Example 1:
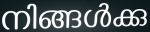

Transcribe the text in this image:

നിങ്ങൾക്കു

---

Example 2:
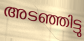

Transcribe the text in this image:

അടഞ്ഞിട്ടു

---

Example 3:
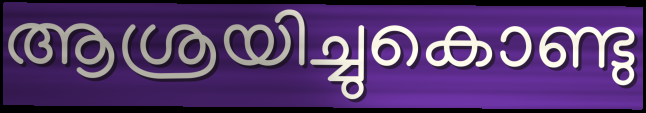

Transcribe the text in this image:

ആശ്രയിച്ചുകൊണ്ടു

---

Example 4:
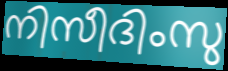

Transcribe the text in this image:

നിസീദിംസു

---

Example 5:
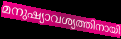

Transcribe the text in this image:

മനുഷ്യാവശ്യത്തിനായി